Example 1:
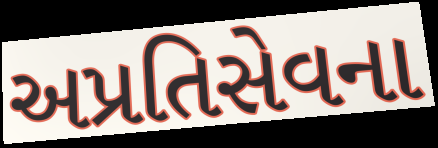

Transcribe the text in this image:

અપ્રતિસેવના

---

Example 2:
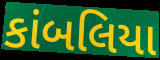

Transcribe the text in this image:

કાંબલિયા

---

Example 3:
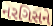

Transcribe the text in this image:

નરગિસને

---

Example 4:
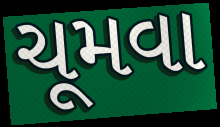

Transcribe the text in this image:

ચૂમવા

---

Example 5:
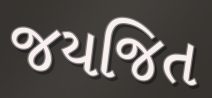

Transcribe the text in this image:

જયજિત